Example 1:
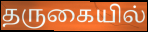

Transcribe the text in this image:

தருகையில்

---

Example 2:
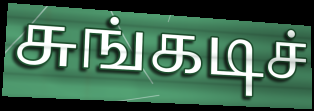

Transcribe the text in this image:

சுங்கடிச்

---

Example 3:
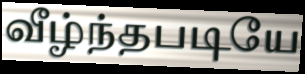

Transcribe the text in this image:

வீழ்ந்தபடியே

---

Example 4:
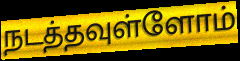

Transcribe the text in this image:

நடத்தவுள்ளோம்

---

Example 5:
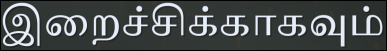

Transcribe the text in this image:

இறைச்சிக்காகவும்